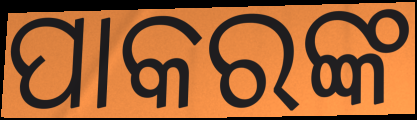
ପାକରଙ୍କ